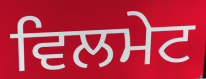
ਵਿਲਮੇਟ